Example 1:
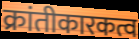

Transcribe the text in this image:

क्रांतीकारकत्व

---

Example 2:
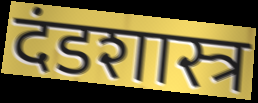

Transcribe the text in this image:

दंडशास्त्र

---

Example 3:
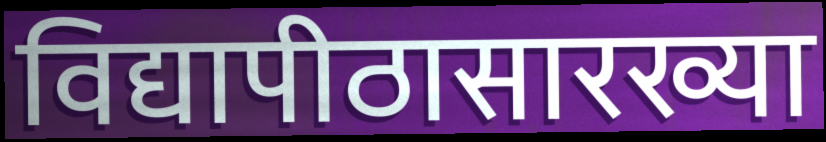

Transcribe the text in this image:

विद्यापीठासारख्या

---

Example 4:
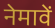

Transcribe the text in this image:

नेमावें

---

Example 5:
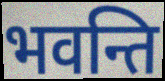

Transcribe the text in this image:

भवन्ति